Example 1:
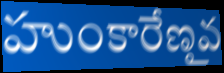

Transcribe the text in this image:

హుంకారేణౖవ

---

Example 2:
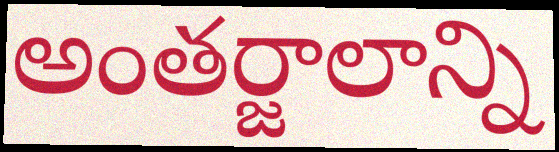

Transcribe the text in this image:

అంతర్జాలాన్ని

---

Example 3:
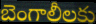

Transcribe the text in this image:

బెంగాలీలకు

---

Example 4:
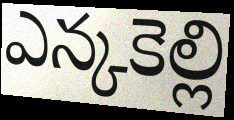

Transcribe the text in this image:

ఎన్కకెల్లి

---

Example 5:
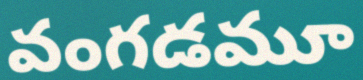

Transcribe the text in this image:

వంగడమూ